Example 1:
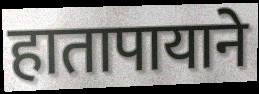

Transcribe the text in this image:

हातापायाने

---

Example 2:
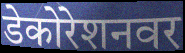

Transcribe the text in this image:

डेकोरेशनवर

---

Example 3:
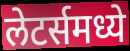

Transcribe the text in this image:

लेटर्समध्ये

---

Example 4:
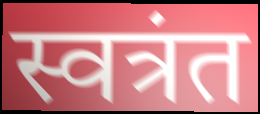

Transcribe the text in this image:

स्वत्रंत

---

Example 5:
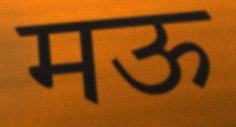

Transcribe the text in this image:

मऊ